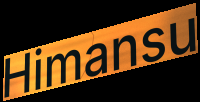
Himansu